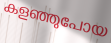
കളഞ്ഞുപോയ